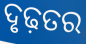
ଦୃଢ଼ତର